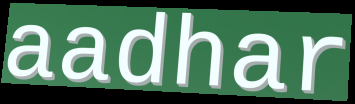
aadhar